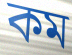
কম